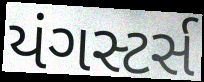
યંગસ્ટર્સ